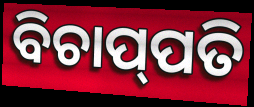
ବିଚାପ୍‌ପତି